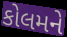
કોલમને